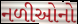
નળીઓનો